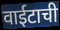
वाईटाची